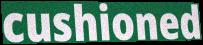
cushioned